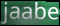
jaabe